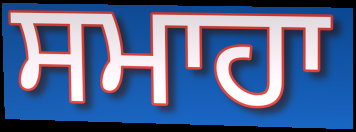
ਸਮਾਹਾ